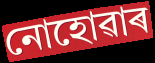
নোহোৱাৰ